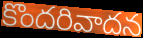
కొందరివాదన